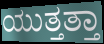
ಯುತ್ತತ್ತಾ